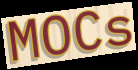
MOCs